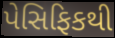
પેસિફિકથી